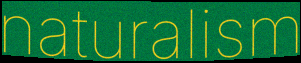
naturalism